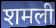
शमली